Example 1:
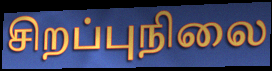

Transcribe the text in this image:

சிறப்புநிலை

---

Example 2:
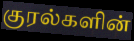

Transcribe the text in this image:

குரல்களின்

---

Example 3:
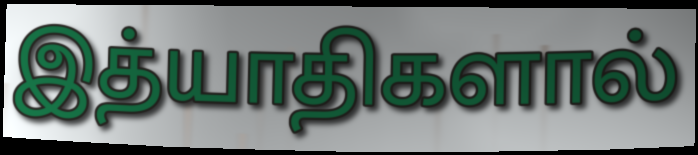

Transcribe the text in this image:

இத்யாதிகளால்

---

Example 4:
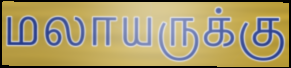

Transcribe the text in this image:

மலாயருக்கு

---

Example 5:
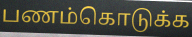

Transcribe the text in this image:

பணம்கொடுக்க